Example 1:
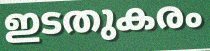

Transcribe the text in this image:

ഇടതുകരം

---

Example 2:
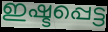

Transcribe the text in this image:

ഇഷ്ടപ്പെട്ട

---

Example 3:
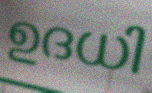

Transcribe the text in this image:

ഉദധി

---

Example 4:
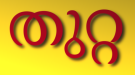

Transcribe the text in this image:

തുറ്റ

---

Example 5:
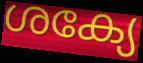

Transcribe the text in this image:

ശക്യേ